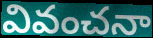
వివంచనా